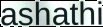
ashathi